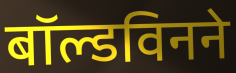
बॉल्डविनने